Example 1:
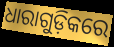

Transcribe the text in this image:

ଧାରାଗୁଡ଼ିକରେ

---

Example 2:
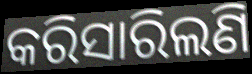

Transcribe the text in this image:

କରିସାରିଲଣି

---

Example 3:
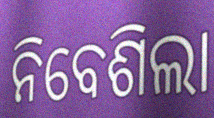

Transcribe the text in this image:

ନିବେଶିଲା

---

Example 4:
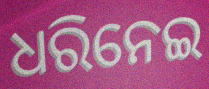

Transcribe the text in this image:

ଧରିନେଇ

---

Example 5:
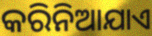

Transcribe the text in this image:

କରିନିଆଯାଏ